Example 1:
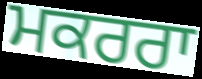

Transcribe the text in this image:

ਮਕਰਰਾ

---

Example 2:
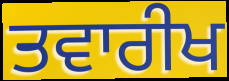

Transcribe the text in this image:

ਤਵਾਰੀਖ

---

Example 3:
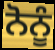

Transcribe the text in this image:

ਨੋਨੂੰ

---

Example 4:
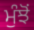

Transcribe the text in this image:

ਮੁੰਝੋਂ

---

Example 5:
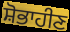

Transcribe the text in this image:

ਸ਼ੋਭਾਹੀਣ